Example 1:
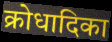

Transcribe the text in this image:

क्रोधादिका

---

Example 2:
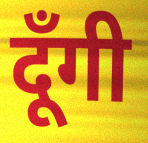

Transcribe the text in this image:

दूँगी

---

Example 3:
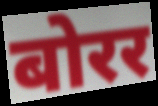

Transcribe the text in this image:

बोरर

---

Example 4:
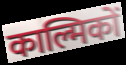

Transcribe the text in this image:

काल्मिकों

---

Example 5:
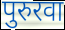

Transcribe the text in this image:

पुरुरवा